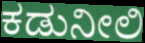
ಕಡುನೀಲಿ